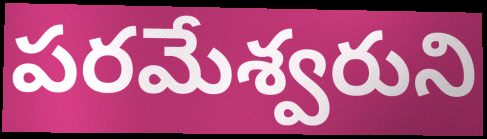
పరమేశ్వరుని